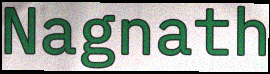
Nagnath